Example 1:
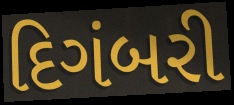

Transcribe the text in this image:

દિગંબરી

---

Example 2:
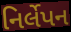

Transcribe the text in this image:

નિર્લેપન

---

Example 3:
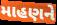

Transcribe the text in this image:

માહણને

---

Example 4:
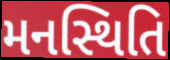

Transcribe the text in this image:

મનસ્થિતિ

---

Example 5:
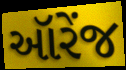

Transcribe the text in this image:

ઑરેંજ